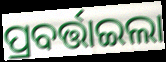
ପ୍ରବର୍ତ୍ତାଇଲା